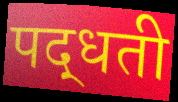
पद्धती